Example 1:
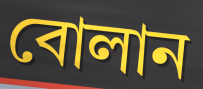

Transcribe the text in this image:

বোলান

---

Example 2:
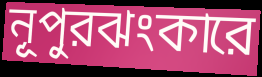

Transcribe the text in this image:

নূপুরঝংকারে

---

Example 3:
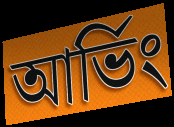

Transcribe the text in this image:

আর্ভিং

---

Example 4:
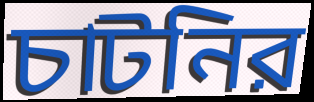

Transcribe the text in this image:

চাটনির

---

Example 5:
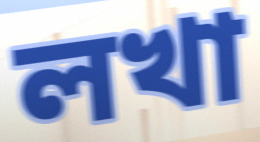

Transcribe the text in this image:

লখা